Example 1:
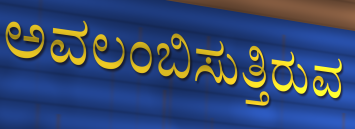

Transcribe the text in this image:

ಅವಲಂಬಿಸುತ್ತಿರುವ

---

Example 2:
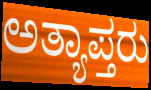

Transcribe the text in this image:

ಅತ್ಯಾಪ್ತರು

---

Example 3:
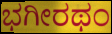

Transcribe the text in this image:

ಭಗೀರಥಂ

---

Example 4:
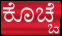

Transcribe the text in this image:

ಕೊಚ್ಚೆ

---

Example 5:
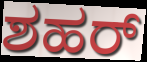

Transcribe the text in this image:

ಶಹರ್